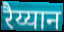
रैय्यान